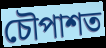
চৌপাশত